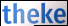
theke